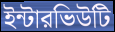
ইন্টারভিউটি